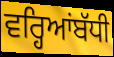
ਵਰ੍ਹਿਆਂਬੱਧੀ